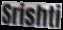
Srishti